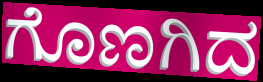
ಗೊಣಗಿದ